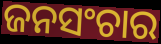
ଜନସଂଚାର